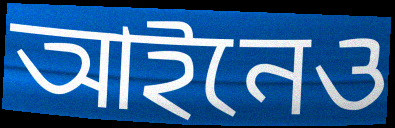
আইনেও